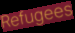
Refugees